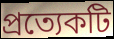
প্ৰত্যেকটি